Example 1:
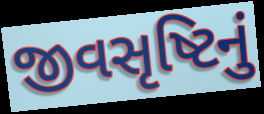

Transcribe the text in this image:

જીવસૃષ્ટિનું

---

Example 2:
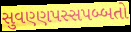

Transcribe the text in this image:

સુવણ્ણપસ્સપબ્બતો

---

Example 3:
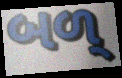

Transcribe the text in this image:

બળ્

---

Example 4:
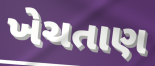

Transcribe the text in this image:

ખેચતાણ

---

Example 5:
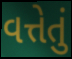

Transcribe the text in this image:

વત્તેતું